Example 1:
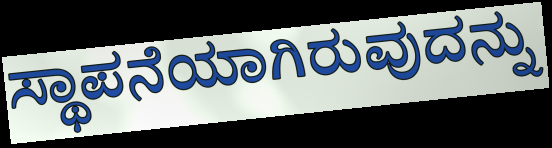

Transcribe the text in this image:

ಸ್ಥಾಪನೆಯಾಗಿರುವುದನ್ನು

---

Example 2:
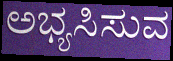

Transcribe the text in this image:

ಅಭ್ಯಸಿಸುವ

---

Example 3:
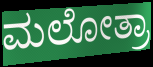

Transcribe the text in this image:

ಮಲೋತ್ರಾ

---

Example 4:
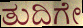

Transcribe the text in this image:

ತುದಿಗೇ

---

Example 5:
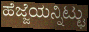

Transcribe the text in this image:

ಹೆಜ್ಜೆಯನ್ನಿಟ್ಟು